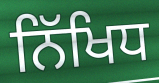
ਨਿੱਖਿਧ